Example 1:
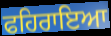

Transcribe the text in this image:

ਫਹਿਰਾਇਆ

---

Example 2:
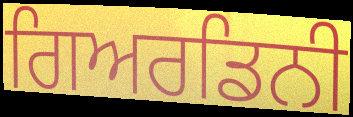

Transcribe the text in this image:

ਗਿਅਰਡਿਨੀ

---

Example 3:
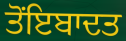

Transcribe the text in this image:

ਤੋਂਇਬਾਦਤ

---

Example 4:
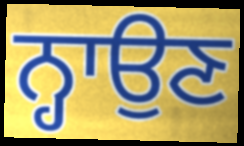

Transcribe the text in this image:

ਨ੍ਹਾਉਣ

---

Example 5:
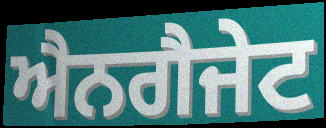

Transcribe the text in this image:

ਐਨਗੈਜੇਟ